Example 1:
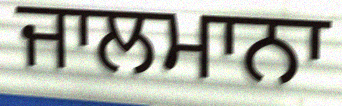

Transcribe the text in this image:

ਜਾਲਮਾਨਾ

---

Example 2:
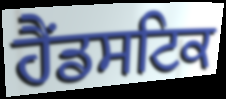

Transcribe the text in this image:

ਹੈਂਡਸਟਿਕ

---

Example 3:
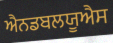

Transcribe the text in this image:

ਐਨਡਬਲਯੂਐਸ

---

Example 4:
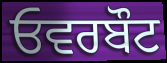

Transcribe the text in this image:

ਓਵਰਬੌਟ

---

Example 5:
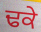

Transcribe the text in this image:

ਢਕੇ